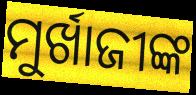
ମୁର୍ଖାଜୀଙ୍କ